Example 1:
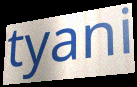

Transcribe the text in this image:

tyani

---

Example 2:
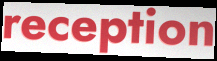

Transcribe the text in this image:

reception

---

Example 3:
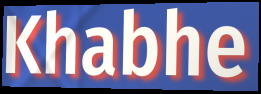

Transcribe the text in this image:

Khabhe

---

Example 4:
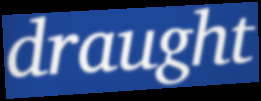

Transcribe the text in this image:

draught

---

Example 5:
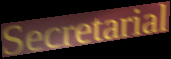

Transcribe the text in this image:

Secretarial